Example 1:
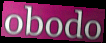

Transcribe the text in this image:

obodo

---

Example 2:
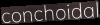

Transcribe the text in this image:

conchoidal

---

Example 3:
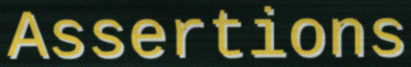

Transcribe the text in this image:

Assertions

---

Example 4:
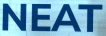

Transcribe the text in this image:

NEAT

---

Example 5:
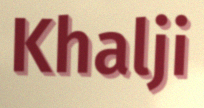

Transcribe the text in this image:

Khalji